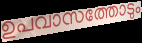
ഉപവാസത്തോടും